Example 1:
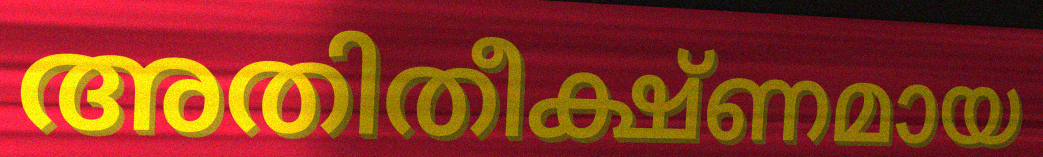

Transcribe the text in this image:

അതിതീക്ഷ്ണമായ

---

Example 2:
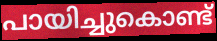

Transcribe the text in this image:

പായിച്ചുകൊണ്ട്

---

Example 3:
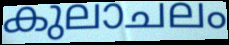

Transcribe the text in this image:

കുലാചലം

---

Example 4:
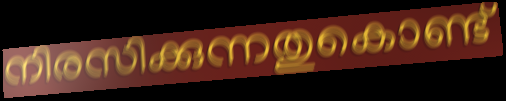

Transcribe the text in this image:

നിരസിക്കുന്നതുകൊണ്ട്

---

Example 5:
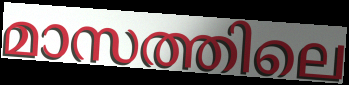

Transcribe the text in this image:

മാസത്തിലെ